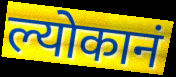
ल्योकानं